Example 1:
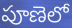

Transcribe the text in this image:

పూణెలో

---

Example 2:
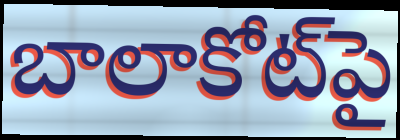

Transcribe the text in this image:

బాలాకోట్‌పై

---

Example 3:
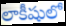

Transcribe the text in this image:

లాకీషులో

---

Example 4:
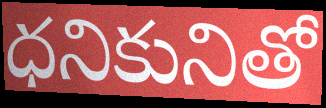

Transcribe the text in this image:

ధనికునితో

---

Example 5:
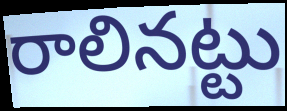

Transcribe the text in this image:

రాలినట్టు